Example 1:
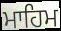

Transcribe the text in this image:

ਮਾਹਿਮ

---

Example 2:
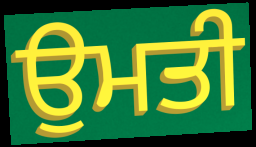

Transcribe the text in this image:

ਉਮਤੀ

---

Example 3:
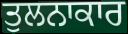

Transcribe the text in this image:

ਤੁਲਨਾਕਾਰ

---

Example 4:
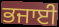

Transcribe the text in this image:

ਭਜਾਈ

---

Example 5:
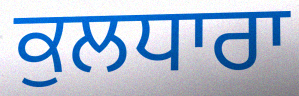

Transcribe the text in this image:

ਕੁਲਧਾਰਾ